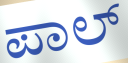
ಪಾಲ್